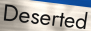
Deserted